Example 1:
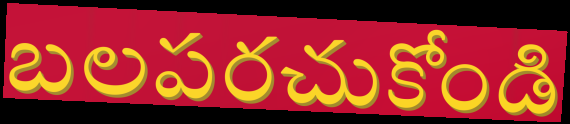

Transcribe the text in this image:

బలపరచుకోండి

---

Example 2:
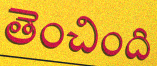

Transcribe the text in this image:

తెంచింది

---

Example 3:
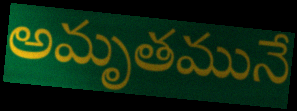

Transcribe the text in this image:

అమృతమునే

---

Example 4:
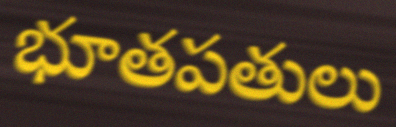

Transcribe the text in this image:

భూతపతులు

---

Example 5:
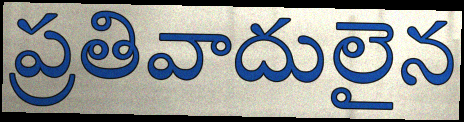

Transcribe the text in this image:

ప్రతివాదులైన